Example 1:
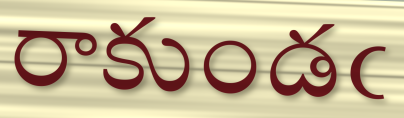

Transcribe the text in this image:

రాకుండఁ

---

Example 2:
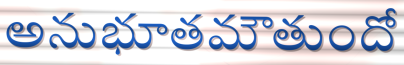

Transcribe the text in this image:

అనుభూతమౌతుందో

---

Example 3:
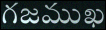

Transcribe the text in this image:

గజముఖ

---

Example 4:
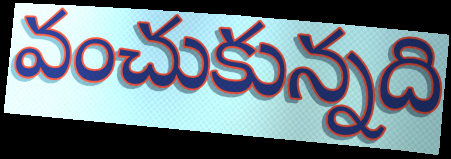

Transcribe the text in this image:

వంచుకున్నది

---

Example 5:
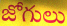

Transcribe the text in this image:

జోగులు